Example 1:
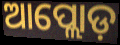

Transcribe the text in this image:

ଆପ୍ଲୋଡ଼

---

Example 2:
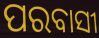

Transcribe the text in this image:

ପରବାସୀ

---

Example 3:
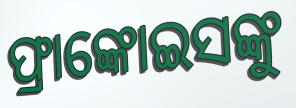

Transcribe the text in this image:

ଫ୍ରାଙ୍କୋଇସଙ୍କୁ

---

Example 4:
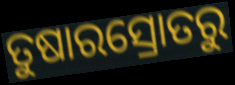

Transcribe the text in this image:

ତୁଷାରସ୍ରୋତରୁ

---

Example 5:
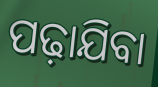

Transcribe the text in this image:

ପଢ଼ାଯିବା